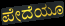
ಪೇದೆಯೂ